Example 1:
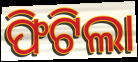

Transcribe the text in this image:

ଫିଟିଲା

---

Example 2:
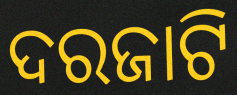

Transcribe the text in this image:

ଦରଜାଟି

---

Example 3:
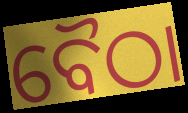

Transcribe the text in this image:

ବୈଠା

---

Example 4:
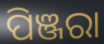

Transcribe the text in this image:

ପିଞ୍ଜରା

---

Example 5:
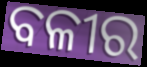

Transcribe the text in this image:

ବଳୀର